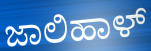
ಜಾಲಿಹಾಳ್